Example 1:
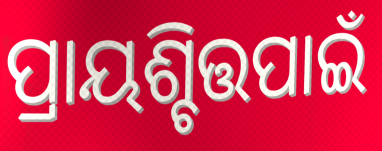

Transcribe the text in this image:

ପ୍ରାୟଶ୍ଚିତ୍ତପାଇଁ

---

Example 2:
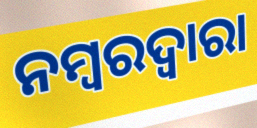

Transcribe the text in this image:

ନମ୍ବରଦ୍ୱାରା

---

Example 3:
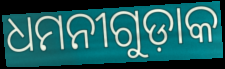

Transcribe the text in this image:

ଧମନୀଗୁଡ଼ାକ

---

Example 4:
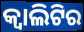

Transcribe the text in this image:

କ୍ୱାଲିଟିର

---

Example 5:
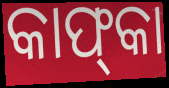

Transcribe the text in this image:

କାଫ୍‍କା